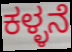
ಕಳ್ಳನೆ